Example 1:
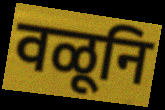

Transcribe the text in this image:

वळूनि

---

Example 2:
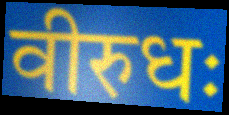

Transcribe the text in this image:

वीरुधः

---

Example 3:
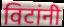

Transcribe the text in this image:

विटांनी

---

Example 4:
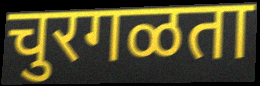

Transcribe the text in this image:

चुरगळता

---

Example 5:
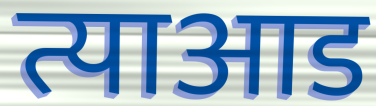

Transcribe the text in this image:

त्याआड